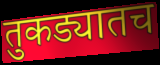
तुकड्यातच